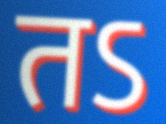
तऽ